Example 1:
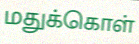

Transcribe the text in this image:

மதுக்கொள்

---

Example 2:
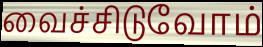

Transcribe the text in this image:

வைச்சிடுவோம்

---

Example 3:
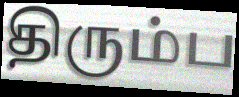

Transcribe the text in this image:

திரும்ப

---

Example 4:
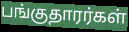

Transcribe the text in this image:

பங்குதாரர்கள்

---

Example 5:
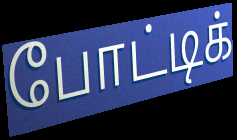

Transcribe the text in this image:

போட்டிக்